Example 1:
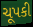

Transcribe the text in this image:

ચૂપકી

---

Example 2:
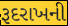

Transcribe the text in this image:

રૂદરાખની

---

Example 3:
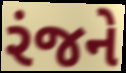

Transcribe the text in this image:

રંજને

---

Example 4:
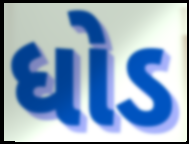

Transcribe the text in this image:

ધોડ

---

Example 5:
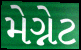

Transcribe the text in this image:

મેગ્નેટ